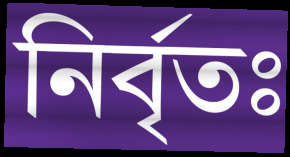
নির্বৃতঃ